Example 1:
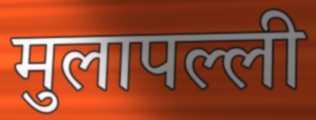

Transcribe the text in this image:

मुलापल्ली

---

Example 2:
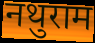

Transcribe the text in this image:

नथुराम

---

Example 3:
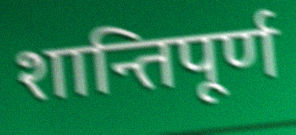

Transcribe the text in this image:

शान्तिपूर्ण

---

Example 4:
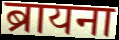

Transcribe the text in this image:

ब्रायना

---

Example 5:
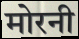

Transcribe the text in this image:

मोरनी